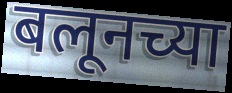
बलूनच्या